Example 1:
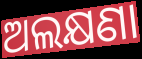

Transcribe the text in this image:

ଅଲକ୍ଷଣା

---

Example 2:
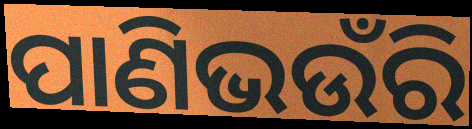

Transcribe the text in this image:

ପାଣିଭଉଁରି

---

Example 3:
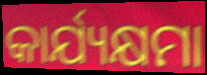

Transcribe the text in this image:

କାର୍ଯ୍ୟକ୍ଷମା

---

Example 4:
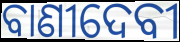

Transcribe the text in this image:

ବାଣୀଦେବୀ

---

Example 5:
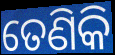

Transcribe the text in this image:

ତେଣିକି